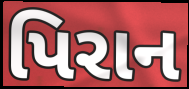
પિરાન